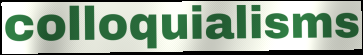
colloquialisms